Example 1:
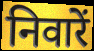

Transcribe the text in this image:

निवारें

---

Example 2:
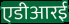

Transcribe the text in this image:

एडीआरई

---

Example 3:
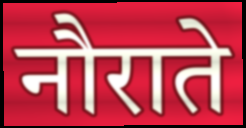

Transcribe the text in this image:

नौराते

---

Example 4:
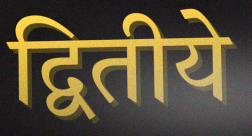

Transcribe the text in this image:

द्वितीये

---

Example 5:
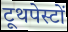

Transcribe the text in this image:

टूथपेस्टों